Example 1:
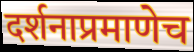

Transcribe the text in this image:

दर्शनाप्रमाणेच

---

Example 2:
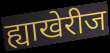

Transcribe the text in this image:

ह्याखेरीज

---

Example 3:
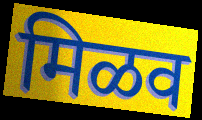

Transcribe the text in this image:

मिळव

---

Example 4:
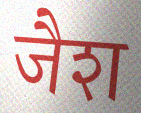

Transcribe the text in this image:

जैश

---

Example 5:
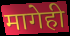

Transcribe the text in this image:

मागेही